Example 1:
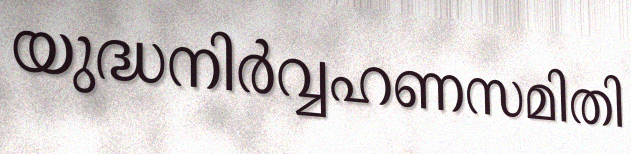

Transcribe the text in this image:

യുദ്ധനിർവ്വഹണസമിതി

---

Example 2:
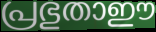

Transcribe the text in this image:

പ്രഭുതാഈ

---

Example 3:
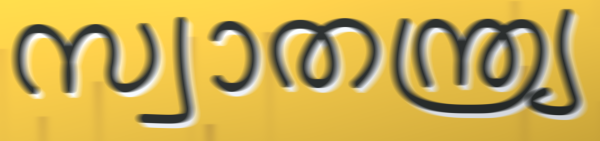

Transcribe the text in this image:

സ്വാതന്ത്ര്യ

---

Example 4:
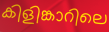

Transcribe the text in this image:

കിളിങ്കാറിലെ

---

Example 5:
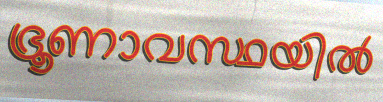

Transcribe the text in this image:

ഭ്രൂണാവസ്ഥയിൽ